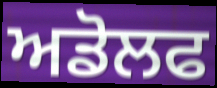
ਅਡੋਲਫ